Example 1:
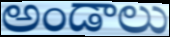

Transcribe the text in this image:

అండాలు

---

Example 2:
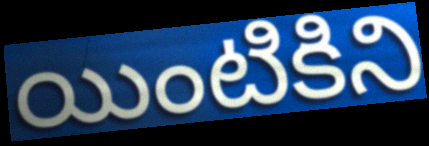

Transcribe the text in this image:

యింటికిని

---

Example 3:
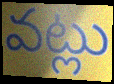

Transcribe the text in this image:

వట్లు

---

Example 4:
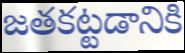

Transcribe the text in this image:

జతకట్టడానికి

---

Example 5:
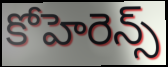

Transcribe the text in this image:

కోహెరెన్స్